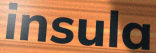
insula